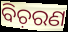
ବିଚ଼ରଣ